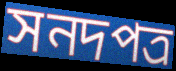
সনদপত্র